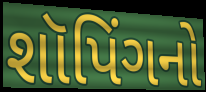
શૉપિંગનો